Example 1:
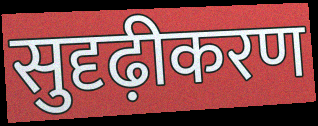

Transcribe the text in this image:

सुदृढ़ीकरण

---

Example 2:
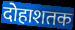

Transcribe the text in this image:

दोहाशतक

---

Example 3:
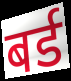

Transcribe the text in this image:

बर्ड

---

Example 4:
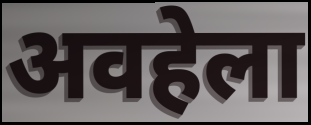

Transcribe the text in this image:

अवहेला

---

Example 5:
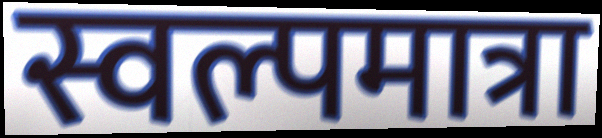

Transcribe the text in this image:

स्वल्पमात्रा